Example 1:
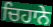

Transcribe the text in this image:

ਚਿਹਾਨੇ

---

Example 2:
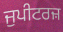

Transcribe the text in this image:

ਜੁਪੀਟਰਜ਼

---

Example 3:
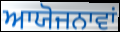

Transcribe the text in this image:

ਆਯੋਜਨਾਵਾਂ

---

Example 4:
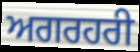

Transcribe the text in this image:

ਅਗਰਹਰੀ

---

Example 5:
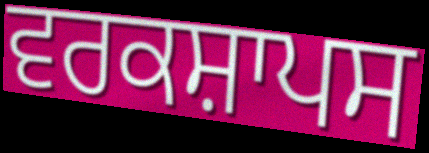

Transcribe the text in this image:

ਵਰਕਸ਼ਾਪਸ